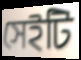
সেইটি